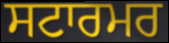
ਸਟਾਰਮਰ